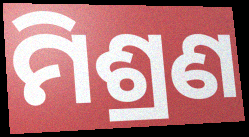
ମିଶ୍ରଣ